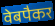
वेबपैकर